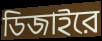
ডিজাইরে